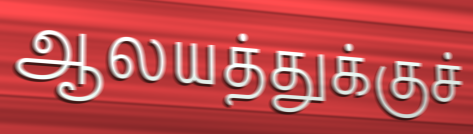
ஆலயத்துக்குச்